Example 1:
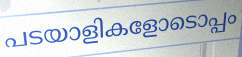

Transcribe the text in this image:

പടയാളികളോടൊപ്പം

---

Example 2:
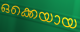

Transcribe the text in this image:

ഒക്കെയായ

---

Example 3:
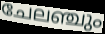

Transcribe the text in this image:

ചേലഞ്ചും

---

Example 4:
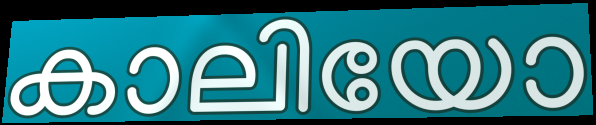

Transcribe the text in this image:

കാലിയോ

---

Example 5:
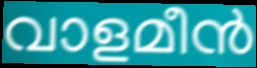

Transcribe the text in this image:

വാളമീൻ